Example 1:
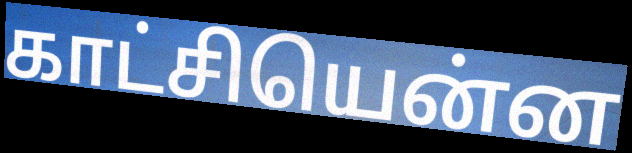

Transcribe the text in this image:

காட்சியென்ன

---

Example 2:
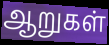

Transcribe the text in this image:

ஆறுகள்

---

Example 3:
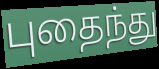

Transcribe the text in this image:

புதைந்து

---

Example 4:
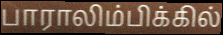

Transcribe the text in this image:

பாராலிம்பிக்கில்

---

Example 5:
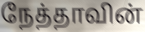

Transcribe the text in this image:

நேத்தாவின்